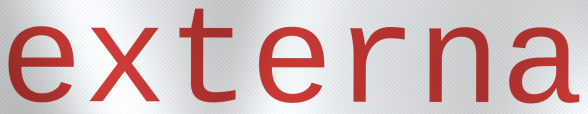
externa